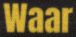
Waar